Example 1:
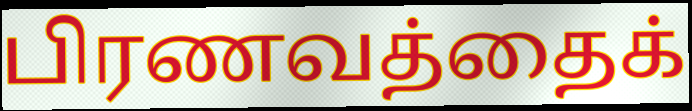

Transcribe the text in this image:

பிரணவத்தைக்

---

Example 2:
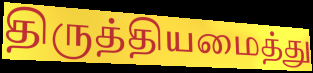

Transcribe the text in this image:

திருத்தியமைத்து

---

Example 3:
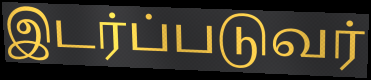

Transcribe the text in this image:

இடர்ப்படுவர்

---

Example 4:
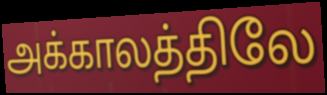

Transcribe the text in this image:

அக்காலத்திலே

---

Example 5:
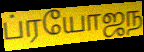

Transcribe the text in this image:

ப்ரயோஜந